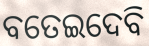
ବତେଇଦେବି